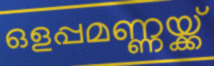
ഒളപ്പമണ്ണയ്ക്ക്